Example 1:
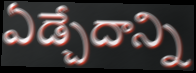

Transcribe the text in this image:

ఏడ్చేదాన్ని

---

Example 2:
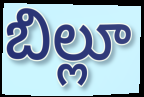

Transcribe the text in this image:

బిల్లూ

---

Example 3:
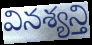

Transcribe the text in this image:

వినశ్యన్తి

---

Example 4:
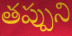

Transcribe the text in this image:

తప్పుని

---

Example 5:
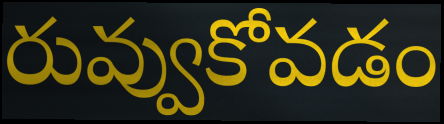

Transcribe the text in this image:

రువ్వుకోవడం